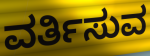
ವರ್ತಿಸುವ